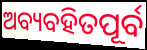
ଅବ୍ୟବହିତପୂର୍ବ